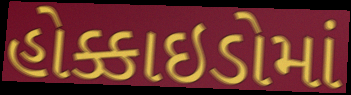
હોક્કાઇડોમાં